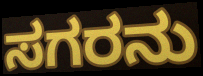
ಸಗರನು